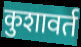
कुशावर्त